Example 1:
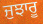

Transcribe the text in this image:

ਜੁਝਾਰੂ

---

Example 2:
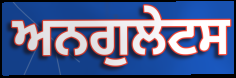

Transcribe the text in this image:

ਅਨਗੁਲੇਟਸ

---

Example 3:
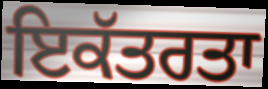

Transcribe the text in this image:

ਇਕੱਤਰਤਾ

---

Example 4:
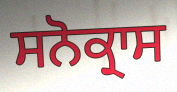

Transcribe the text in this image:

ਸਨੋਕ੍ਰਾਸ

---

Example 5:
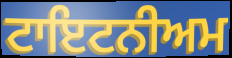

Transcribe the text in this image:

ਟਾਇਟਨੀਅਮ